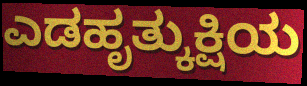
ಎಡಹೃತ್ಕುಕ್ಷಿಯ